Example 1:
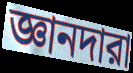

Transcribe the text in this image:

জ্ঞানদারা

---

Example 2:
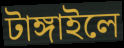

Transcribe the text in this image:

টাঙ্গাইলে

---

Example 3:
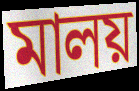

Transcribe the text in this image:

মালয়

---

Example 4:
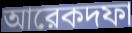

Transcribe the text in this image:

আরেকদফা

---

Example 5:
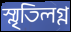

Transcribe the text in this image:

স্মৃতিলগ্ন